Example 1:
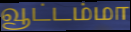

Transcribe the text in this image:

வூட்டம்மா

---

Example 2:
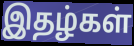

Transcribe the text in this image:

இதழ்கள்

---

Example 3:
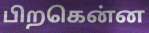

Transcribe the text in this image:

பிறகென்ன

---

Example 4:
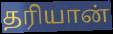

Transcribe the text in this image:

தரியான்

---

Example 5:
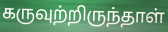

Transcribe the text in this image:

கருவுற்றிருந்தாள்